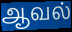
ஆவல்